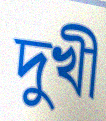
দুখী